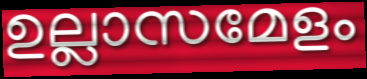
ഉല്ലാസമേളം